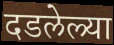
दडलेल्या